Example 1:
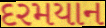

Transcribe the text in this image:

દરમયાન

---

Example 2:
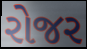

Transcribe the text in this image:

રોજર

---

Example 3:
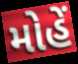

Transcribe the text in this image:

મોહેં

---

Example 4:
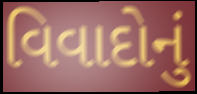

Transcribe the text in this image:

વિવાદોનું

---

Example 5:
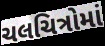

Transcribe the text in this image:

ચલચિત્રોમાં